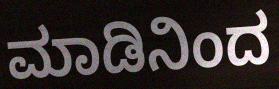
ಮಾಡಿನಿಂದ